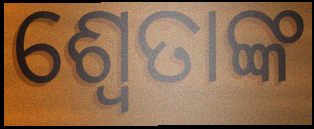
ଶ୍ୱେତାଙ୍କ